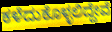
ಕಳೆದುಕೊಳ್ಳಲಿದ್ದೇವೆ